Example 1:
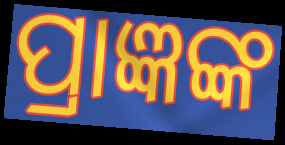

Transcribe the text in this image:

ପ୍ରାଜ୍ଞଙ୍କ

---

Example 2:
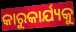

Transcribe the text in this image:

କାରୁକାର୍ଯ୍ୟକୁ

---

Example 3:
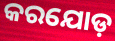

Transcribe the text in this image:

କରଯୋଡ଼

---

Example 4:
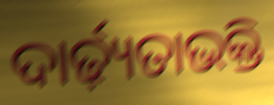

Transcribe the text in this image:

ଦାର୍ଢ଼୍ୟତାଭକ୍ତି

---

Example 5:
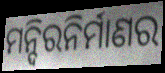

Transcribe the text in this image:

ମନ୍ଦିରନିର୍ମାଣର